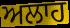
ਅਲਾਹ